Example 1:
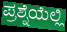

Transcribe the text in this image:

ಪ್ರಶ್ನೆಯೆಲ್ಲಿ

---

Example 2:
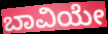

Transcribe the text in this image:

ಬಾವಿಯೇ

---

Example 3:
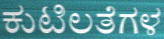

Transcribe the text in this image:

ಕುಟಿಲತೆಗಳ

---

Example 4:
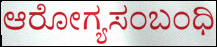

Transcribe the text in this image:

ಆರೋಗ್ಯಸಂಬಂಧಿ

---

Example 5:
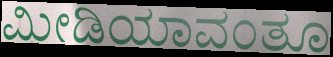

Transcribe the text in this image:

ಮೀಡಿಯಾವಂತೂ